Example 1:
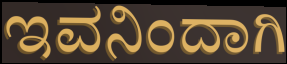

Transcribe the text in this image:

ಇವನಿಂದಾಗಿ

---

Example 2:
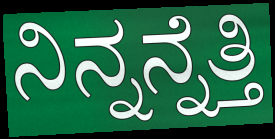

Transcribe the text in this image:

ನಿನ್ನನ್ನೆತ್ತಿ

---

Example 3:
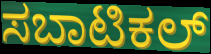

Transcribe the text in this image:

ಸಬಾಟಿಕಲ್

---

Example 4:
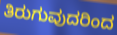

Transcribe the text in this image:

ತಿರುಗುವುದರಿಂದ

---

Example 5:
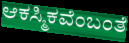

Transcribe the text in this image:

ಆಕಸ್ಮಿಕವೆಂಬಂತೆ